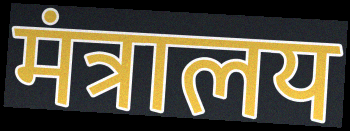
मंत्रालय